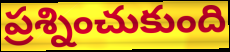
ప్రశ్నించుకుంది